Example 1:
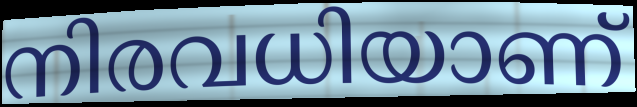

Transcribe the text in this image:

നിരവധിയാണ്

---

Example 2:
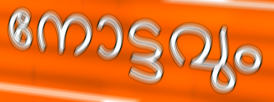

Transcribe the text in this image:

നോട്ടവും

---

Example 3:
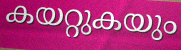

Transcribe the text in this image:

കയറ്റുകയും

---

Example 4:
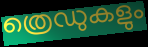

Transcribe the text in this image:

ത്രെഡുകളും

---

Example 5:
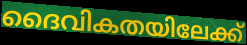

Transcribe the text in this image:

ദൈവികതയിലേക്ക്